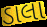
ડાલા